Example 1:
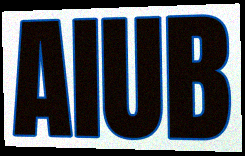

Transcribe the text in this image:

AIUB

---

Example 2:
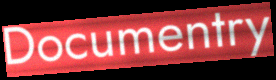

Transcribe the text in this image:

Documentry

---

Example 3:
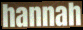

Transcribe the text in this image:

hannah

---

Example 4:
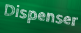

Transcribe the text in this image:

Dispenser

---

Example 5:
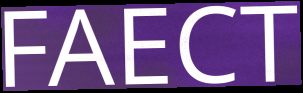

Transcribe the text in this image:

FAECT